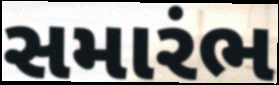
સમારંભ